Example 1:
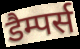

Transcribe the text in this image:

डैम्पर्स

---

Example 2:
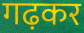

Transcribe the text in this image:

गढ़कर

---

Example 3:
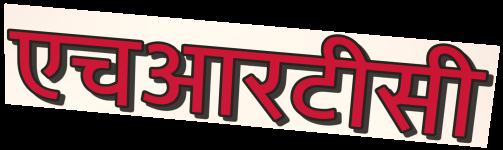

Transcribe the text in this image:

एचआरटीसी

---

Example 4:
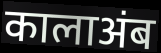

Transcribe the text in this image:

कालाअंब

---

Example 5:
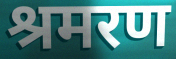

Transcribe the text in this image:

श्रमरण